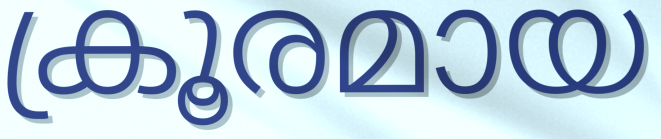
ക്രൂരമായ